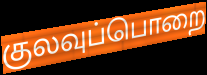
குலவுப்பொறை